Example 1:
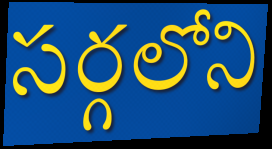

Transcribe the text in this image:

సర్గలోని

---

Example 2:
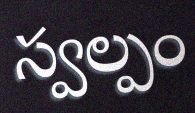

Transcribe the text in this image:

స్వల్పం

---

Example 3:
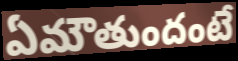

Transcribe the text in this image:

ఏమౌతుందంటే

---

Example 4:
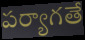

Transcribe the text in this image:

పర్యాగతే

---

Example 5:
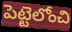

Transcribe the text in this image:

పెట్టెలోంచి